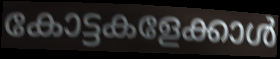
കോട്ടകളേക്കാൾ